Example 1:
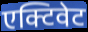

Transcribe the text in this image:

एक्टिवेट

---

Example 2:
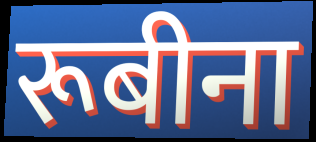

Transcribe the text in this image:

रूबीना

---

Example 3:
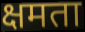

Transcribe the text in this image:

क्षमता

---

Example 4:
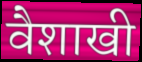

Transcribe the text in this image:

वैशाखी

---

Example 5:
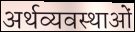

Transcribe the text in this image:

अर्थव्यवस्थाओं